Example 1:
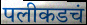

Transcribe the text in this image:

पलीकडचं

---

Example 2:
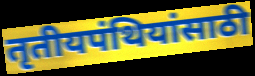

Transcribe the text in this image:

तृतीयपंथियांसाठी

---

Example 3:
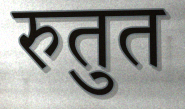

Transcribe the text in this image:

रुतुत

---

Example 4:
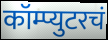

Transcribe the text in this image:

कॉम्प्युटरचं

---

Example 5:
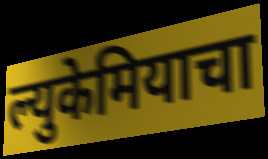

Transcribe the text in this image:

ल्युकेमियाचा